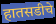
हातसडीचे